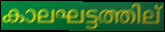
കാലഘട്ടത്തില്